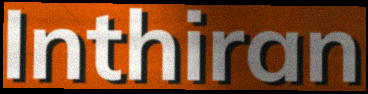
Inthiran